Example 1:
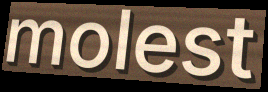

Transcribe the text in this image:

molest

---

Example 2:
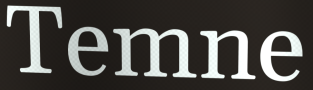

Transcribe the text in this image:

Temne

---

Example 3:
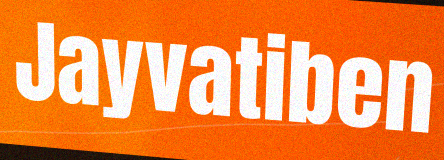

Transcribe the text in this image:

Jayvatiben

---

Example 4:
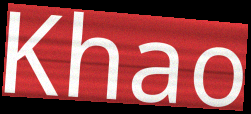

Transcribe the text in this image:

Khao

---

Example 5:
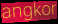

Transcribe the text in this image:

angkor